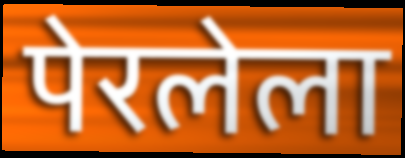
पेरलेला